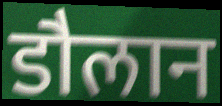
डौलान